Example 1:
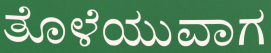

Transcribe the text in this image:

ತೊಳೆಯುವಾಗ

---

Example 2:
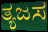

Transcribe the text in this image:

ತ್ಯಜಸ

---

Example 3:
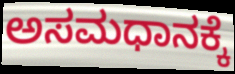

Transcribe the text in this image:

ಅಸಮಧಾನಕ್ಕೆ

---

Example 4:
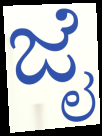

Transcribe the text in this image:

ಜೈ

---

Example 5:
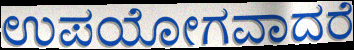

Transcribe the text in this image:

ಉಪಯೋಗವಾದರೆ